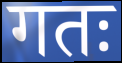
गतः